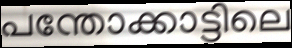
പന്തോക്കാട്ടിലെ